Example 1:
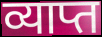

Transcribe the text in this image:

व्‍याप्‍त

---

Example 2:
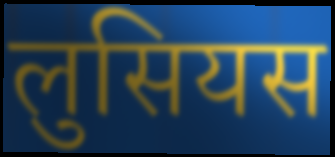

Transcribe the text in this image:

लुसियस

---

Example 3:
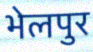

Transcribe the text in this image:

भेलपुर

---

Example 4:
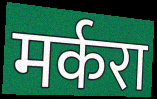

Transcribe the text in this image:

मर्करा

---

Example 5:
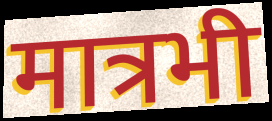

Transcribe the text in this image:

मात्रभी